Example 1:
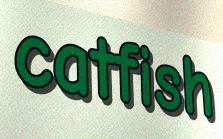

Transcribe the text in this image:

catfish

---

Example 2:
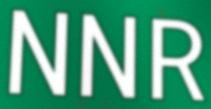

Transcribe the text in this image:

NNR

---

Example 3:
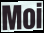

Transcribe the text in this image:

Moi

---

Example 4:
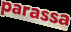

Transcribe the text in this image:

parassa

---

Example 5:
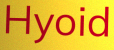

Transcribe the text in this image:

Hyoid